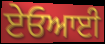
ਏਓਆਈ